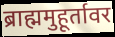
ब्राह्ममुहूर्तावर